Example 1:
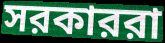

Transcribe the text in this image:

সরকাররা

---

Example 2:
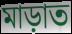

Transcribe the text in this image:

মাড়াত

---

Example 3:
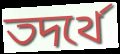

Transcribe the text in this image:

তদর্থে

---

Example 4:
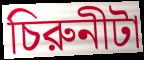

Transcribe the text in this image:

চিরুনীটা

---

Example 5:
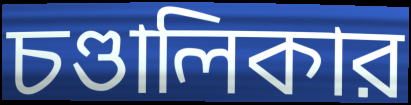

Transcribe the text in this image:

চণ্ডালিকার